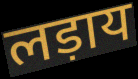
लड़ाय